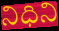
నిధిని